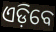
ଏଡ଼ିବେ